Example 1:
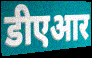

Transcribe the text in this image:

डीएआर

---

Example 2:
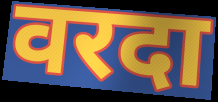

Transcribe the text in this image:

वरदा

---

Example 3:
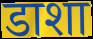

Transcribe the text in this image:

डाशा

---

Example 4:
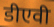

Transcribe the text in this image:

डीएवी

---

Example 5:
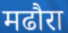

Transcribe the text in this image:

मढौरा